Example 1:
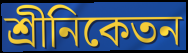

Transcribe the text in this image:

শ্রীনিকেতন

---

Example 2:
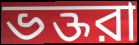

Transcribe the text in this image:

ভক্তরা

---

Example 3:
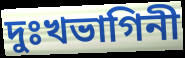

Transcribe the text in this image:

দুঃখভাগিনী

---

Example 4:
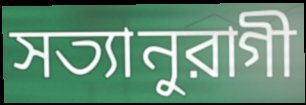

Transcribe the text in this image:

সত্যানুরাগী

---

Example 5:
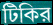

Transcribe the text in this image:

টিকির